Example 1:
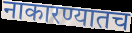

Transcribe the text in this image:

नाकारण्यातच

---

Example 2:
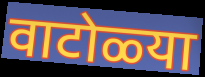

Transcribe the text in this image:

वाटोळ्या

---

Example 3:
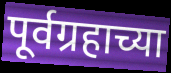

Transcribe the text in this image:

पूर्वग्रहाच्या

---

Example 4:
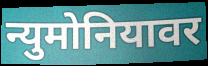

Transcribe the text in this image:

न्युमोनियावर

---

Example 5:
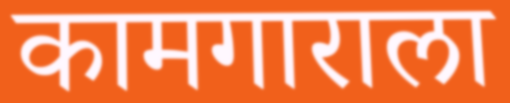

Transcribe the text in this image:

कामगाराला